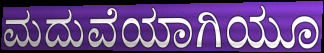
ಮದುವೆಯಾಗಿಯೂ